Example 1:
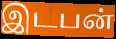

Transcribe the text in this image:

இடபன்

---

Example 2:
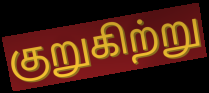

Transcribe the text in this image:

குறுகிற்று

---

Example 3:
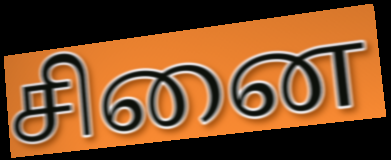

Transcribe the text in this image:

சினை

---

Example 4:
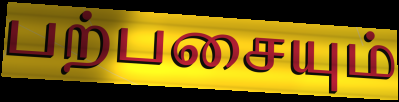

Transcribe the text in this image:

பற்பசையும்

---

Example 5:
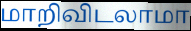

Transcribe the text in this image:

மாறிவிடலாமா